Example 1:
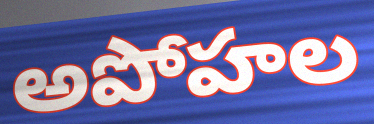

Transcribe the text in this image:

అపోహల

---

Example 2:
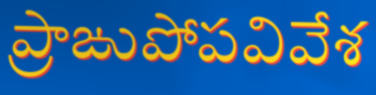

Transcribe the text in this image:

ప్రాఙుపోపవివేశ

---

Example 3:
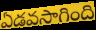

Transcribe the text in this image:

ఏడవసాగింది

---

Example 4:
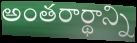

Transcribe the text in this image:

అంతరార్థాన్ని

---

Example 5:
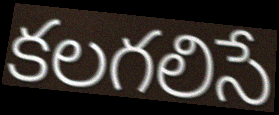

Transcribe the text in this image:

కలగలిసే